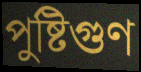
পুষ্টিগুণ